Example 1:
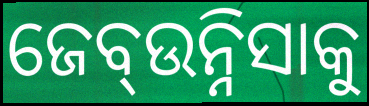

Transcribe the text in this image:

ଜେବ୍ଉନ୍ନିସାକୁ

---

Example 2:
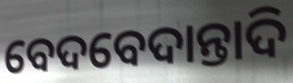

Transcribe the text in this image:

ବେଦବେଦାନ୍ତାଦି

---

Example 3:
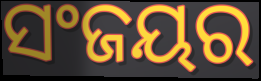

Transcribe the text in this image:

ସଂଜୟର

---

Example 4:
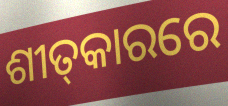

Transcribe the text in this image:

ଶୀତ୍‌କାରରେ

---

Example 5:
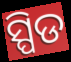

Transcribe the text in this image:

ସ୍ପିଡ